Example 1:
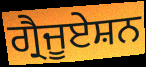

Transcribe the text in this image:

ਗ੍ਰੈਜੂਏਸ਼ਨ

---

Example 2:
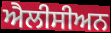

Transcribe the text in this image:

ਐਲੀਸੀਅਨ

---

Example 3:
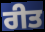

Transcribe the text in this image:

ਰੀਤ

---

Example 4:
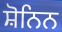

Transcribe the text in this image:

ਸ਼ੋਨਿਨ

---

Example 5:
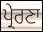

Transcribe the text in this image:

ਪ੍ਰੇਰਣਾ